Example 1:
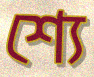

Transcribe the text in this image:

শ্যে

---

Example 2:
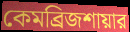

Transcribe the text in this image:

কেমব্রিজশায়ার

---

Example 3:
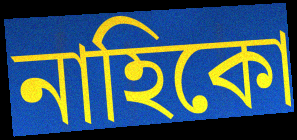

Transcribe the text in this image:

নাহিকো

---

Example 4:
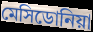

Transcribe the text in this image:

মেসিডোনিয়া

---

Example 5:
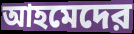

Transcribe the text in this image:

আহমেদের